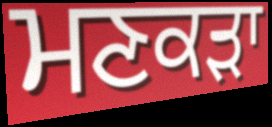
ਮਣਕੜਾ